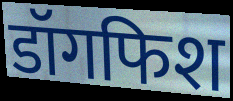
डॉगफिश